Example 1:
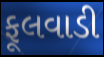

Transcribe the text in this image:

ફૂલવાડી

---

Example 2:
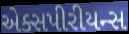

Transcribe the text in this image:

એક્સપીરીયન્સ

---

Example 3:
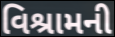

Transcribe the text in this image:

વિશ્રામની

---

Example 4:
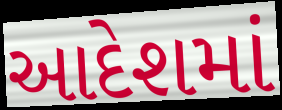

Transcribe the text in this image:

આદેશમાં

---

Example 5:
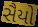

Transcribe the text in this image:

સૈયો